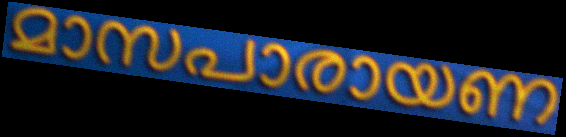
മാസപാരായണ